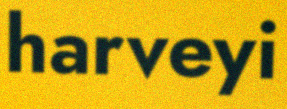
harveyi